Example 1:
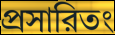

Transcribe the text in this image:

প্রসারিতং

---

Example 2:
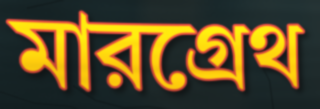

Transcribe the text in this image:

মারগ্রেথ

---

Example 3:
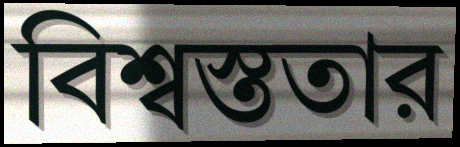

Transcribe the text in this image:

বিশ্বস্ততার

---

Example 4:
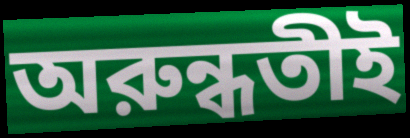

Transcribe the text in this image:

অরুন্ধতীই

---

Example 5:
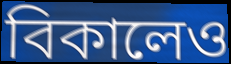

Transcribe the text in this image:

বিকালেও